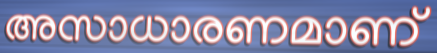
അസാധാരണമാണ്